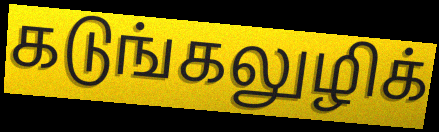
கடுங்கலுழிக்